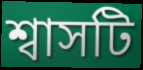
শ্বাসটি